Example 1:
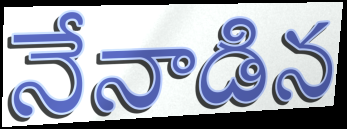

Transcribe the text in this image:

నేనాడిన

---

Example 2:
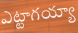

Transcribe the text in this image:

ఎట్టాగయ్యా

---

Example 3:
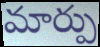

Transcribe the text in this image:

మార్పు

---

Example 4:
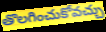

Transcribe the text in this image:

తొలగించుకోవచ్చు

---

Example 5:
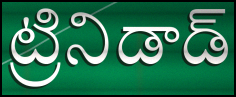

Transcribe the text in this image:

ట్రినిడాడ్